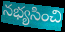
నభ్యసించి